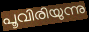
പൂവിരിയുന്നു